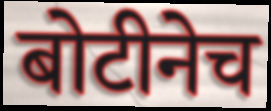
बोटीनेच